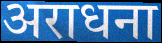
अराधना